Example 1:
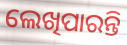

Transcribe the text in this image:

ଲେଖିପାରନ୍ତି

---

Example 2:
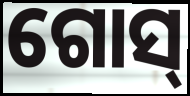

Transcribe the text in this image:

ଗୋସ୍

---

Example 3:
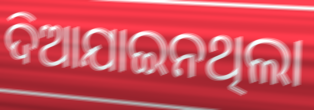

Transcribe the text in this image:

ଦିଆଯାଇନଥିଲା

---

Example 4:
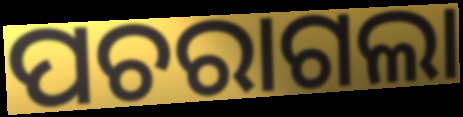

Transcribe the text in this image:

ପଚରାଗଲା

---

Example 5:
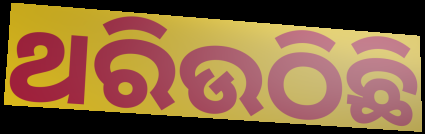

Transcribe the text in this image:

ଥରିଉଠିଛି